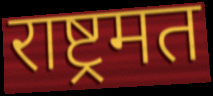
राष्ट्रमत